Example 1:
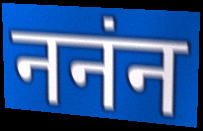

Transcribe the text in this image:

ननंन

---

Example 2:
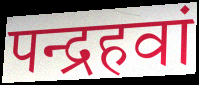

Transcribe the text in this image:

पन्द्रहवां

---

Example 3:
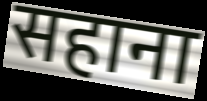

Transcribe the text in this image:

सहाना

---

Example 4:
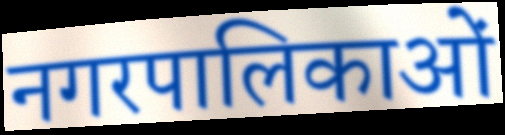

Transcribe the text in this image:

नगरपालिकाओं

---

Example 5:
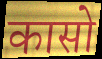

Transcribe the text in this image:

कासो